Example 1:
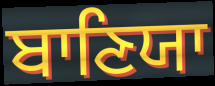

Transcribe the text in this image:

ਬਾਣਿਯਾ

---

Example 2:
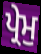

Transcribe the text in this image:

ਪ੍ਰੇਮੁ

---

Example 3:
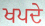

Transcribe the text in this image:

ਖਪਦੇ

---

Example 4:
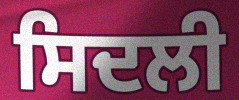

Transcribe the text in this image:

ਸਿਦਲੀ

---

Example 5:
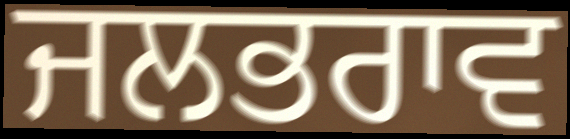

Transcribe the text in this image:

ਜਲਭਰਾਵ